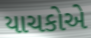
યાચકોએ